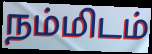
நம்மிடம்